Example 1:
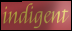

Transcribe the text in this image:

indigent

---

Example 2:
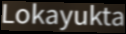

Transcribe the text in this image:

Lokayukta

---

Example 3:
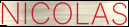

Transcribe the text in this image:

NICOLAS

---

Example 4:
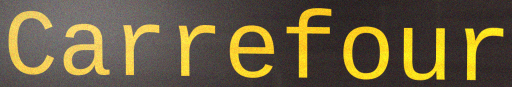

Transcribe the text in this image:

Carrefour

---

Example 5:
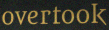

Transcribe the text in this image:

overtook